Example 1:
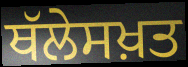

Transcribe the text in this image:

ਥੱਲੇਸਖ਼ਤ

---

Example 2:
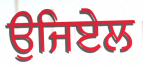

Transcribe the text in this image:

ਉਜਿਏਲ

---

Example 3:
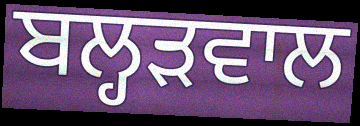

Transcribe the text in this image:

ਬਲ੍ਹੜਵਾਲ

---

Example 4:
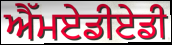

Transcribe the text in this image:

ਐੱਮਏਡੀਏਡੀ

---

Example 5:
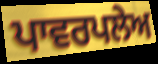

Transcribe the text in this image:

ਪਾਵਰਪਲੇਅ